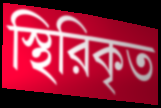
স্থিরিকৃত